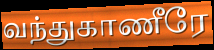
வந்துகாணீரே